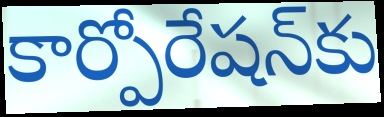
కార్పోరేషన్‌కు